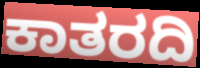
ಕಾತರದಿ